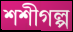
শশীগল্প